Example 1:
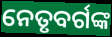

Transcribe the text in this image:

ନେତୃବର୍ଗଙ୍କ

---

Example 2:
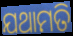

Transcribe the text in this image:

ଯଥାମତି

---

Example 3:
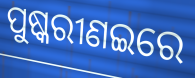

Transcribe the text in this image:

ପୁଷ୍କରୀଣଇରେ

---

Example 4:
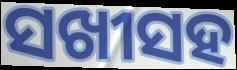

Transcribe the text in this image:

ସଖୀସହ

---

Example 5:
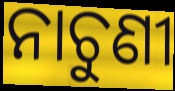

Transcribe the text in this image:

ନାଚୁଣୀ